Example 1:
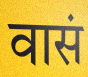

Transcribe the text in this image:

वासं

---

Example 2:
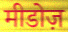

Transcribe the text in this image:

मीडोज़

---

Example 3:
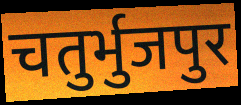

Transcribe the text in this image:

चतुर्भुजपुर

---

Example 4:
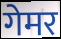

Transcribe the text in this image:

गेमर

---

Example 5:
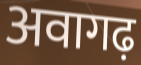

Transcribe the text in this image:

अवागढ़